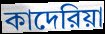
কাদেরিয়া